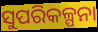
ସୁପରିକଳ୍ପନା